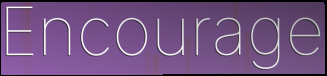
Encourage